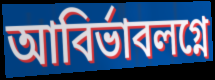
আবির্ভাবলগ্নে